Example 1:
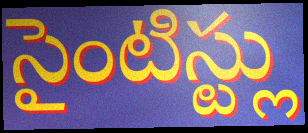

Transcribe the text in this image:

సైంటిస్ట్లు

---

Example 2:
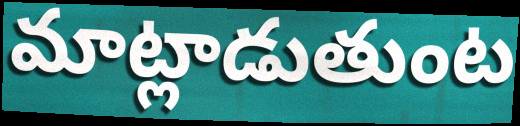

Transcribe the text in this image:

మాట్లాడుతుంట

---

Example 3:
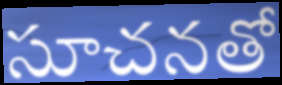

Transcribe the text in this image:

సూచనతో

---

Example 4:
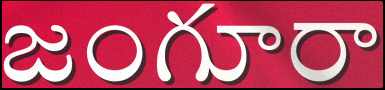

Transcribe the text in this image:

జంగూరా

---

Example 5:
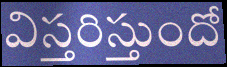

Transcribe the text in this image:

విస్తరిస్తుందో